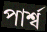
পার্শ্ব